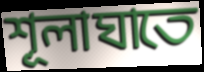
শূলাঘাতে